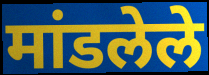
मांडलेले